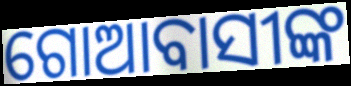
ଗୋଆବାସୀଙ୍କ